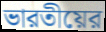
ভারতীয়ের